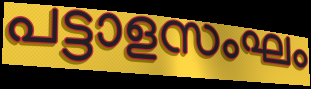
പട്ടാളസംഘം